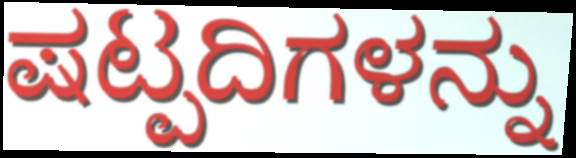
ಷಟ್ಪದಿಗಳನ್ನು